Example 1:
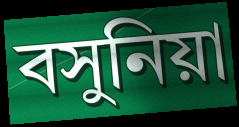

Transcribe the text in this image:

বসুনিয়া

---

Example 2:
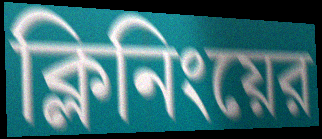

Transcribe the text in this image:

ক্লিনিংয়ের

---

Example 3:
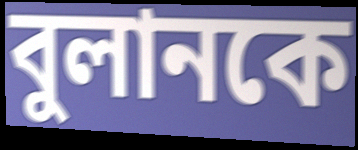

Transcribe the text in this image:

বুলানকে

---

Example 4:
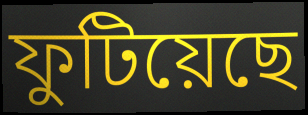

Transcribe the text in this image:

ফুটিয়েছে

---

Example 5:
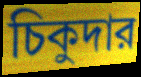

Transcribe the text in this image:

চিকুদার